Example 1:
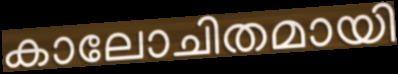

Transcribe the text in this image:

കാലോചിതമായി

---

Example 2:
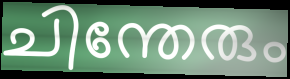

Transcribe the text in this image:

ചിന്തേരും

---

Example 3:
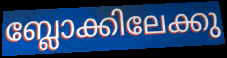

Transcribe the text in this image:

ബ്ലോക്കിലേക്കു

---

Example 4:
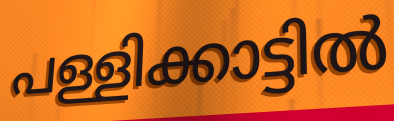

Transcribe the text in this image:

പള്ളിക്കാട്ടിൽ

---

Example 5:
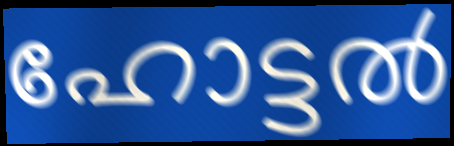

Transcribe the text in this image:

ഹോട്ടൽ